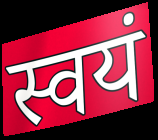
स्वयं